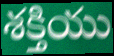
శక్తియు